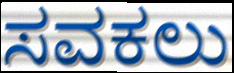
ಸವಕಲು